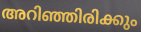
അറിഞ്ഞിരിക്കും